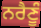
ਨਰੈਣੂੰ